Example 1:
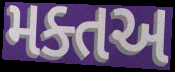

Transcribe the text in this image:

મક્તઅ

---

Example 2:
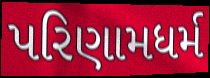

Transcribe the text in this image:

પરિણામધર્મ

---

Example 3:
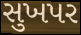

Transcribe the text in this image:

સુખપર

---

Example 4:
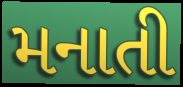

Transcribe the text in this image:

મનાતી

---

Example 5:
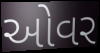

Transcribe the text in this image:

ઓવર